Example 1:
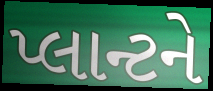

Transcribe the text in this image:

પ્લાન્ટને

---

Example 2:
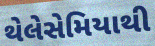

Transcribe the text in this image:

થેલેસેમિયાથી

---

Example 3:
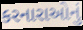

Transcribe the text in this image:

કરનારાઓનું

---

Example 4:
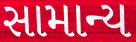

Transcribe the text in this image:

સામાન્ય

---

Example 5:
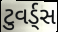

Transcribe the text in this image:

ટુવર્ડ્સ